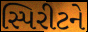
સ્પિરીટને